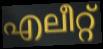
എലീറ്റ്